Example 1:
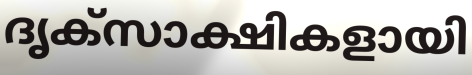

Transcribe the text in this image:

ദൃക്സാക്ഷികളായി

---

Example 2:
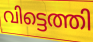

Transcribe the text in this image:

വിട്ടെത്തി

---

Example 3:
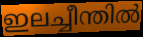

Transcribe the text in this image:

ഇലച്ചീന്തിൽ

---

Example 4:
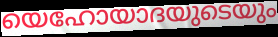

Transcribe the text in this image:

യെഹോയാദയുടെയും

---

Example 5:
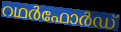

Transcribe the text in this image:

റഥർഫോർഡ്